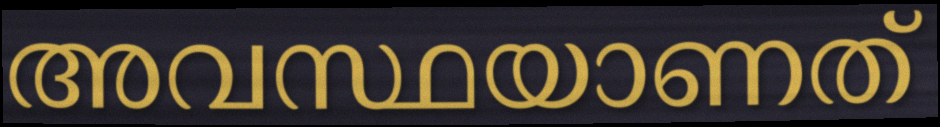
അവസ്ഥയാണത്